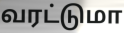
வரட்டுமா